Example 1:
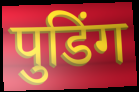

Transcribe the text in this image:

पुडिंग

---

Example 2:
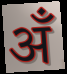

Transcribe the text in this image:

अँ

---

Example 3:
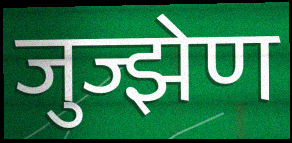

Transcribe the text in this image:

जुज्झेण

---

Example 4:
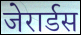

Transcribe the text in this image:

जेरार्डस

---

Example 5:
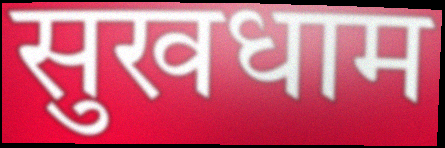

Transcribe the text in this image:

सुखधाम